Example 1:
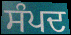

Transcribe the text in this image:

ਸੰਪਦ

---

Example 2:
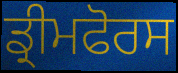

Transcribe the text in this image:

ਡ੍ਰੀਮਫੋਰਸ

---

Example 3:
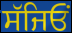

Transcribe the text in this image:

ਸੱਜਿਓਂ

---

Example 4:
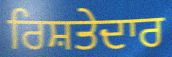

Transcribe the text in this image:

ਰਿਸ਼ਤੇਦਾਰ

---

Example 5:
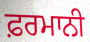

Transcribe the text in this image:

ਫ਼ਰਮਾਨੀ